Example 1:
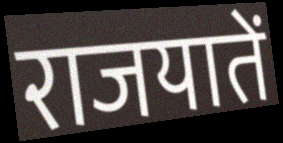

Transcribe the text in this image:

राजयातें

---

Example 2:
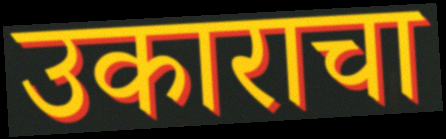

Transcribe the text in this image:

उकाराचा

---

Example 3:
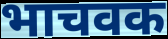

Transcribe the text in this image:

भाचवक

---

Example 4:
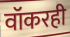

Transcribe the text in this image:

वॉकरही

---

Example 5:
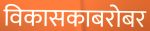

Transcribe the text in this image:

विकासकाबरोबर